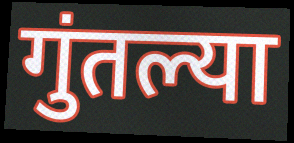
गुंतल्या